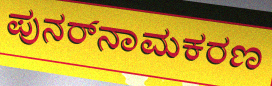
ಪುನರ್‌ನಾಮಕರಣ